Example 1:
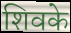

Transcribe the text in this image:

शिवके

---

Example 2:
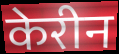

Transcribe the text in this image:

केरीन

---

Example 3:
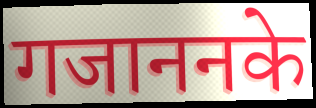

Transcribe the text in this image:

गजाननके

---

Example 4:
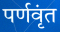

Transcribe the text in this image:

पर्णवृंत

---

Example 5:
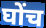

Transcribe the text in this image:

घोंच